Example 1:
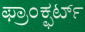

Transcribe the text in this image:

ಫ್ರಾಂಕ್ಫರ್ಟ್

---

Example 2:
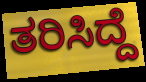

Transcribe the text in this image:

ತರಿಸಿದ್ದೆ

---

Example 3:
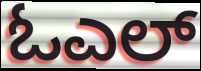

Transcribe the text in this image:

ಓಎಲ್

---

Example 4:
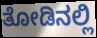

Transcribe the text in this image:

ತೋಡಿನಲ್ಲಿ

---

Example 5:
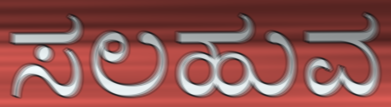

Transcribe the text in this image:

ಸಲಹುವ